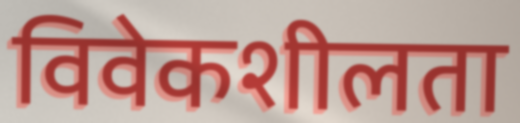
विवेकशीलता